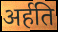
अर्हति